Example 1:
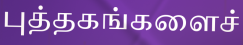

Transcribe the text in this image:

புத்தகங்களைச்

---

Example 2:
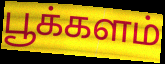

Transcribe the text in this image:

பூக்களம்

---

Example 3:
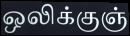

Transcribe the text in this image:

ஒலிக்குஞ்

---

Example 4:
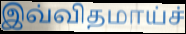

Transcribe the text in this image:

இவ்விதமாய்ச்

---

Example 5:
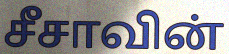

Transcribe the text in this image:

சீசாவின்